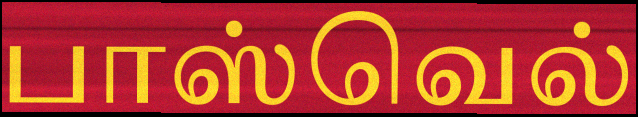
பாஸ்வெல்